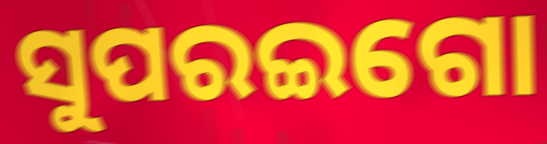
ସୁପରଇଗୋ